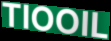
TIOOIL